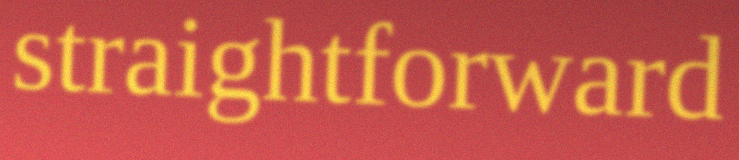
straightforward